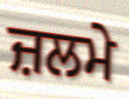
ਜ਼ਲਮੇ